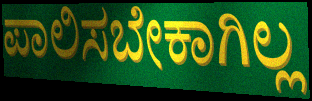
ಪಾಲಿಸಬೇಕಾಗಿಲ್ಲ